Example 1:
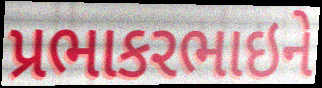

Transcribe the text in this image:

પ્રભાકરભાઇને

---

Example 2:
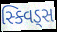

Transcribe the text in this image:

સ્ક્વિડ્સ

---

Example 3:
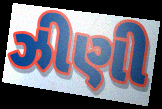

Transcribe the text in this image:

ઝીણી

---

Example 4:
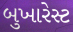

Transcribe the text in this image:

બુખારેસ્ટ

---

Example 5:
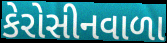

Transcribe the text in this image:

કેરોસીનવાળા